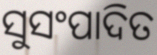
ସୁସଂପାଦିତ